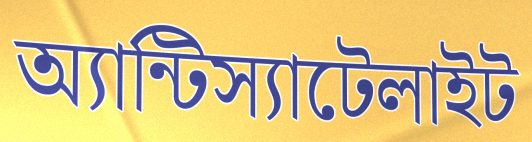
অ্যান্টিস্যাটেলাইট